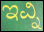
ಇವ್ನಿ